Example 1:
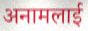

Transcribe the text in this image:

अनामलाई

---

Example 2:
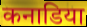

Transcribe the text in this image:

कनाडिया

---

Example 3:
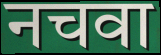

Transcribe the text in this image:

नचवा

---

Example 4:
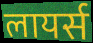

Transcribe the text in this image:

लायर्स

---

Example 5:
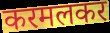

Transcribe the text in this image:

करमलकर